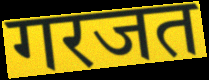
गरजत